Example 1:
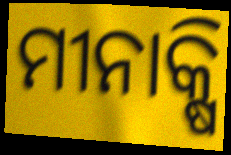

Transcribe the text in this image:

ମୀନାକ୍ଷି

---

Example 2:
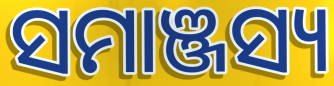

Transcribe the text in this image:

ସମାଞ୍ଜସ୍ୟ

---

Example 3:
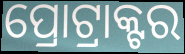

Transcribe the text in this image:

ପ୍ରୋଟ୍ରାକ୍ଟର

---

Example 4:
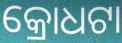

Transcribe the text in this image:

କ୍ରୋଧଟା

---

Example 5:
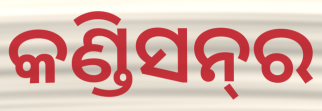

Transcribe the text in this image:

କଣ୍ଡିସନ୍‌ର